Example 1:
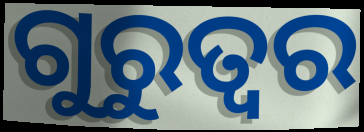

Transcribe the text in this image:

ଗୁରୁତ୍ବର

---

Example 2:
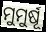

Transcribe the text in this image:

ମୁମୁର୍ଷୂ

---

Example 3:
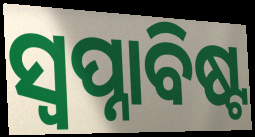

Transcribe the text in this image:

ସ୍ୱପ୍ନାବିଷ୍ଟ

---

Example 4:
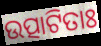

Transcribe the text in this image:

ଉତ୍ପାଟିତାଃ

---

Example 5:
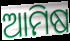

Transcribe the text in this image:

ଆମିଷ